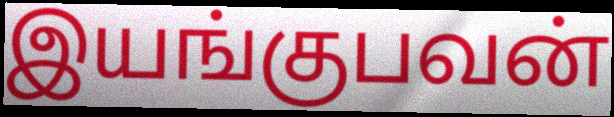
இயங்குபவன்